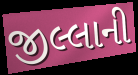
જીલ્લાની